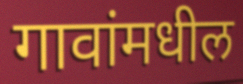
गावांमधील